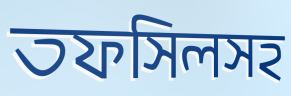
তফসিলসহ